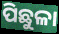
ପିଛୁଳା